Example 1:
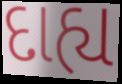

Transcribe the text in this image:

દાહ્ય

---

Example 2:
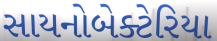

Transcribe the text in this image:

સાયનોબેક્ટેરિયા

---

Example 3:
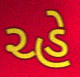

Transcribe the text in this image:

ચ્હે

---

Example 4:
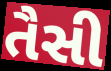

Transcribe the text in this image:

તૈસી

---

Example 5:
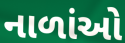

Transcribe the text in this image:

નાળાંઓ